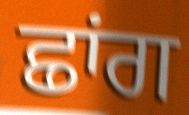
ਛਾਂਗ